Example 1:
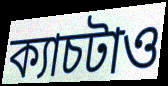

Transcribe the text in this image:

ক্যাচটাও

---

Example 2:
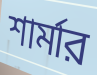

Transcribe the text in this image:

শার্মার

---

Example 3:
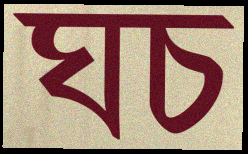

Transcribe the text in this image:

ঘচ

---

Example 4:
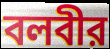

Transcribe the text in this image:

বলবীর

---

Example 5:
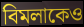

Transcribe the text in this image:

বিমলাকেও